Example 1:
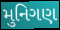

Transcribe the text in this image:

મુનિગણ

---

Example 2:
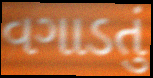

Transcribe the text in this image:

વગાડતું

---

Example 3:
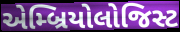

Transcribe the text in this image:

એમ્બ્રિયોલોજિસ્ટ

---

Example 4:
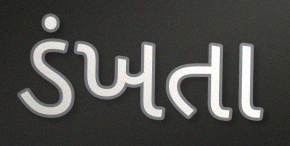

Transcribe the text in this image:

ડંખતા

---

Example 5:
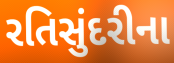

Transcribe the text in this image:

રતિસુંદરીના